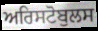
ਅਰਿਸਟੋਬੁਲਸ